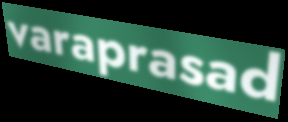
varaprasad